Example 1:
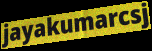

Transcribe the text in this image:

jayakumarcsj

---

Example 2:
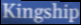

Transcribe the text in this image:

Kingship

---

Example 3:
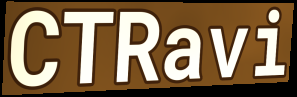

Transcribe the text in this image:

CTRavi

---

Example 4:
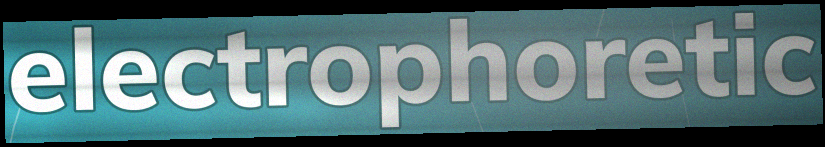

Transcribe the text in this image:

electrophoretic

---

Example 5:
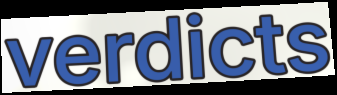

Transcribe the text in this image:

verdicts